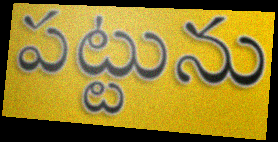
పట్టును